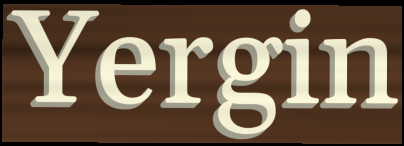
Yergin